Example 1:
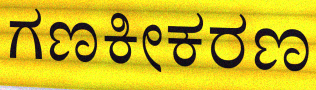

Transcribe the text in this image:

ಗಣಕೀಕರಣ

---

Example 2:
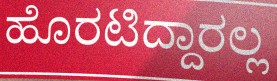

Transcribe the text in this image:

ಹೊರಟಿದ್ದಾರಲ್ಲ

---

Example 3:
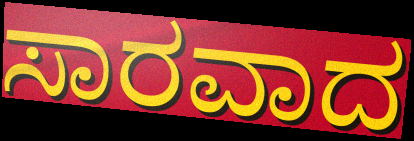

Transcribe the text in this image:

ಸಾರವಾದ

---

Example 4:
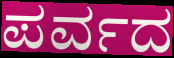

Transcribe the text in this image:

ಪರ್ವದ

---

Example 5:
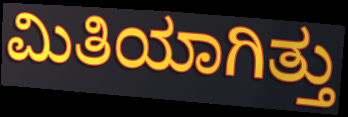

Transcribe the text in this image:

ಮಿತಿಯಾಗಿತ್ತು